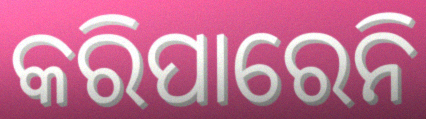
କରିପାରେନି